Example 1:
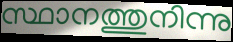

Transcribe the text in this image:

സ്ഥാനത്തുനിന്നു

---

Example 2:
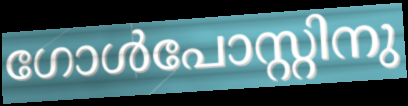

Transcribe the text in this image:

ഗോൾപോസ്റ്റിനു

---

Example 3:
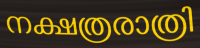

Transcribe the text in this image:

നക്ഷത്രരാത്രി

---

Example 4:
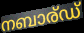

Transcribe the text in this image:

നബാര്ഡ്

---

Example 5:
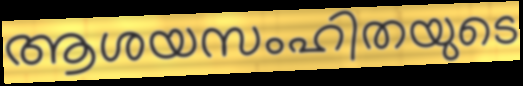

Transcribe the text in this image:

ആശയസംഹിതയുടെ